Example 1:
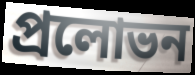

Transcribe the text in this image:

প্ৰলোভন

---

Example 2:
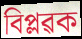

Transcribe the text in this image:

বিপ্লৱক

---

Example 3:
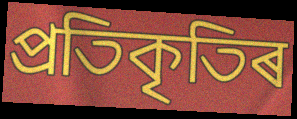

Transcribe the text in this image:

প্ৰতিকৃতিৰ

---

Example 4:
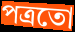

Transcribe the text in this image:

পত্ৰতো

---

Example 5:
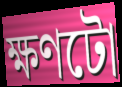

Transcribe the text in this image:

ক্ষণটো